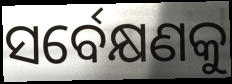
ସର୍ବେକ୍ଷଣକୁ